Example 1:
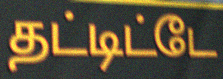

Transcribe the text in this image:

தட்டிட்டே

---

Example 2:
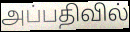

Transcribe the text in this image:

அப்பதிவில்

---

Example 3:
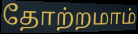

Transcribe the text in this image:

தோற்றமாம்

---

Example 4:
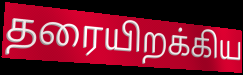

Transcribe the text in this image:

தரையிறக்கிய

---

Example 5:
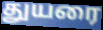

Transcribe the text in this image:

துயரை